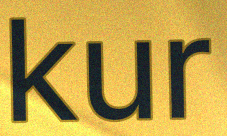
kur